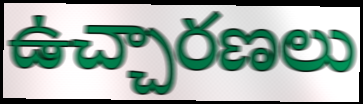
ఉచ్చారణలు